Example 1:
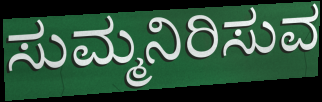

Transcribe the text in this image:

ಸುಮ್ಮನಿರಿಸುವ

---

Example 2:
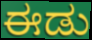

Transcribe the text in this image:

ಈಡು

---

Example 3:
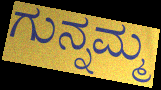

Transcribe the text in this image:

ಗುನ್ನಮ್ಮ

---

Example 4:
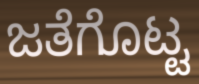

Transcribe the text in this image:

ಜತೆಗೊಟ್ಟ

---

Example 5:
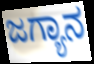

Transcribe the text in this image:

ಜಗ್ಯಾನ